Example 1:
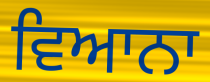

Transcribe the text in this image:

ਵਿਆਨਾ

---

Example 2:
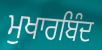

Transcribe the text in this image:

ਮੁਖਾਰਬਿੰਦ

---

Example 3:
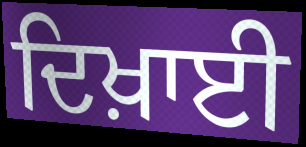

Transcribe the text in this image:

ਦਿਖ਼ਾਈ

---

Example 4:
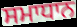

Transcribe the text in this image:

ਸਮਾਧਾਨ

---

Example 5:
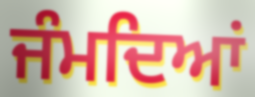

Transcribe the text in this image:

ਜੰਮਦਿਆਂ